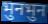
भुनभुन